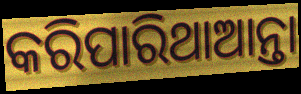
କରିପାରିଥାଆନ୍ତା